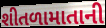
શીતળામાતાની